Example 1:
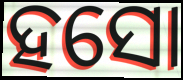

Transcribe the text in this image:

ହସୋ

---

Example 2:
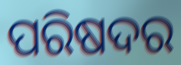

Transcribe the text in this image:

ପରିଷଦର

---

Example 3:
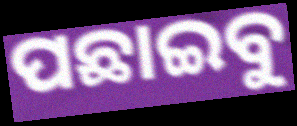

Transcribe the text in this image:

ପଛାଇବୁ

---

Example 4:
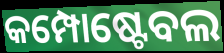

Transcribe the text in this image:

କମ୍ପୋଷ୍ଟେବଲ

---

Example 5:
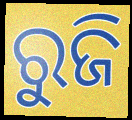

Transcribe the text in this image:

ରୁଜି